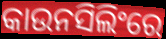
କାଉନସିଲିଂରେ